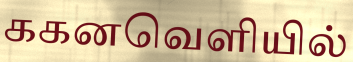
ககனவெளியில்